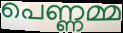
പെണ്ണമ്മ